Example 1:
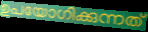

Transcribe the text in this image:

ഉപയോഗിക്കുന്നത്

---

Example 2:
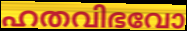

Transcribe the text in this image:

ഹതവിഭവോ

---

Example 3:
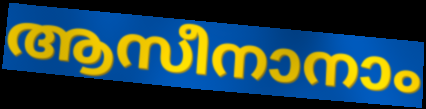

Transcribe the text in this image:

ആസീനാനാം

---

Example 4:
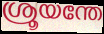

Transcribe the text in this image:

ശ്രൂയന്തേ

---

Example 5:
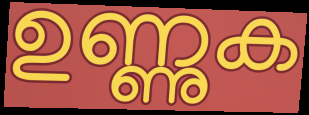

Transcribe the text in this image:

ഉണ്ണുക